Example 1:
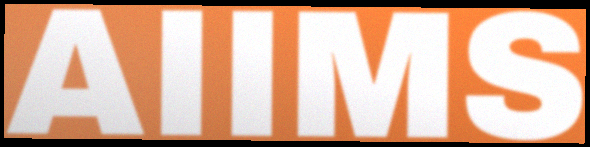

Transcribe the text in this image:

AIIMS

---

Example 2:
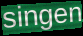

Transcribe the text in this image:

singen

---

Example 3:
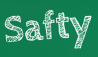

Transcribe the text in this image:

Safty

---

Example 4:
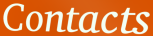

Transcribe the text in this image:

Contacts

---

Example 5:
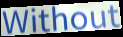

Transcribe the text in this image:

Without